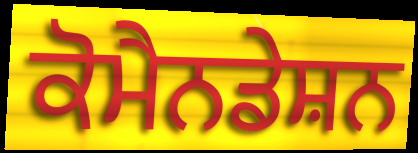
ਕੋਮੈਨਡੇਸ਼ਨ